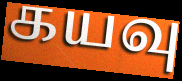
கயவு